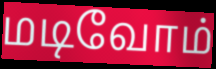
மடிவோம்